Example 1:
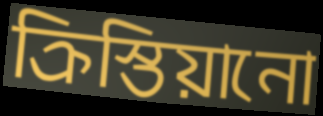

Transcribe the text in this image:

ক্রিস্তিয়ানো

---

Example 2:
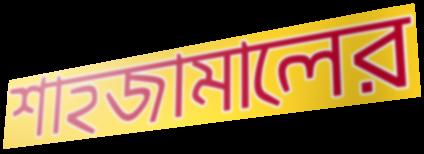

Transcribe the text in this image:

শাহজামালের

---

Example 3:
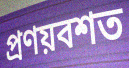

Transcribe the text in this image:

প্রণয়বশত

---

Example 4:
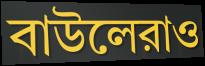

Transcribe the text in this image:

বাউলেরাও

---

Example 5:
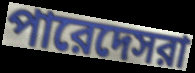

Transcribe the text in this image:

পারেদেসরা